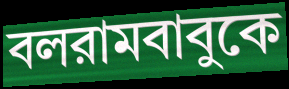
বলরামবাবুকে